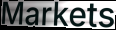
Markets